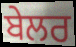
ਬੇਲਰ